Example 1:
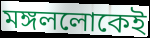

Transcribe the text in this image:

মঙ্গললোকেই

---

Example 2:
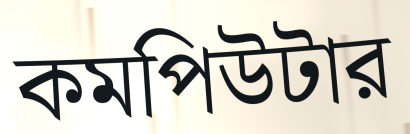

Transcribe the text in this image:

কমপিউটার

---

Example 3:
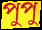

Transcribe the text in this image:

পুপু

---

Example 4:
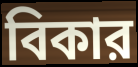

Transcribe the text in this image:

বিকার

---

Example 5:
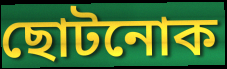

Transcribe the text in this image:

ছোটনোক